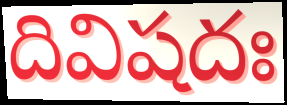
దివిషదః